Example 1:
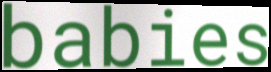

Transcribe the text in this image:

babies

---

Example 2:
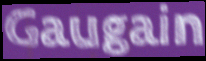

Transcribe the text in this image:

Gaugain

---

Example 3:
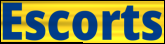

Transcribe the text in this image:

Escorts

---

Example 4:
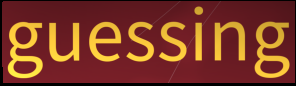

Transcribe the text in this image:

guessing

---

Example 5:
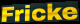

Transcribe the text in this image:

Fricke